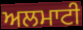
ਅਲਮਾਟੀ